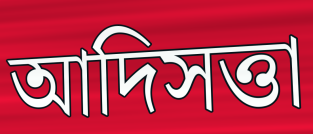
আদিসত্তা